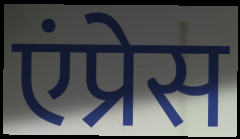
एंप्रेस